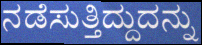
ನಡೆಸುತ್ತಿದ್ದುದನ್ನು